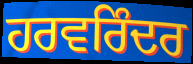
ਹਰਵਰਿੰਦਰ